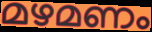
മഴമണം